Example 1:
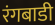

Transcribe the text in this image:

रंगबाडी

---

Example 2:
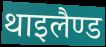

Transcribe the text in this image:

थाइलैण्ड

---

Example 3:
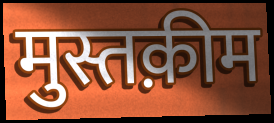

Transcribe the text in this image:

मुस्तक़ीम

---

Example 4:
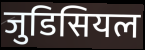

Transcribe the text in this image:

जुडिसियल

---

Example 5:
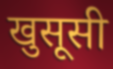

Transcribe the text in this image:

खुसूसी